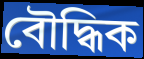
বৌদ্ধিক